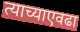
त्याच्याएवढा